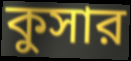
কুসার